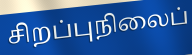
சிறப்புநிலைப்